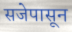
सजेपासून